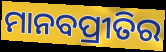
ମାନବପ୍ରୀତିର